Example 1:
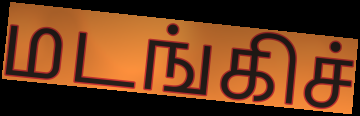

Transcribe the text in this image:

மடங்கிச்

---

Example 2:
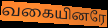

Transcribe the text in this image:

வகையினரே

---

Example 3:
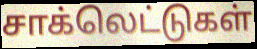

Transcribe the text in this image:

சாக்லெட்டுகள்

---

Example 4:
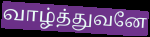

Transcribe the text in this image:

வாழ்த்துவனே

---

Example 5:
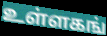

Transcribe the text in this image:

உள்ளகங்